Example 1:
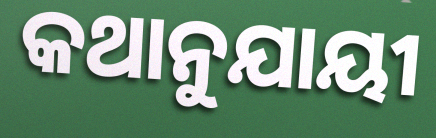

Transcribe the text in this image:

କଥାନୁଯାୟୀ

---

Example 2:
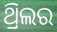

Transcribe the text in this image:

ଥ୍ରିଲର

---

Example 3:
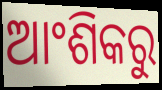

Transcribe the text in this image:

ଆଂଶିକରୁ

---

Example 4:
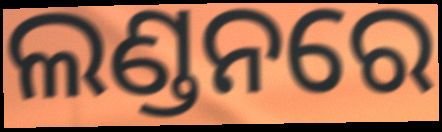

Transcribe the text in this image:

ଲଣ୍ଡନରେ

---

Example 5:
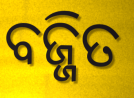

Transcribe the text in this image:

ବଜ୍ଜିତ